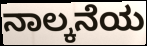
ನಾಲ್ಕನೆಯ